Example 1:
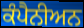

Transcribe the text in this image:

ਕੰਪੈਨੀਅਨ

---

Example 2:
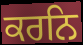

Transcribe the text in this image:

ਕਰਨਿ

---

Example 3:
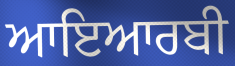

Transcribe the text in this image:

ਆਇਆਰਬੀ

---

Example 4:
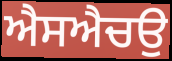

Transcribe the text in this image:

ਐਸਐਚਉ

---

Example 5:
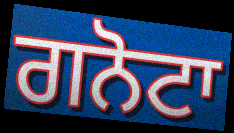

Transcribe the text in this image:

ਗਨੋਟਾ